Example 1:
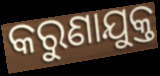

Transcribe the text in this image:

କରୁଣାଯୁକ୍ତ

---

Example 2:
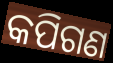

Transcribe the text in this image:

କପିଗଣ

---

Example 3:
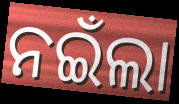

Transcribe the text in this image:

ନଇଁଲା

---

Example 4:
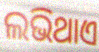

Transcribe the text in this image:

ଲଭିଥାଏ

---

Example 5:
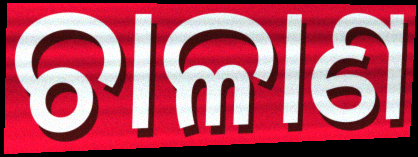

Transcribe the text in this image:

ଚାଳାଣ